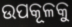
ଉପକୂଳକୁ